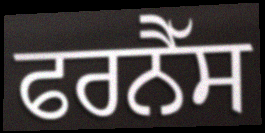
ਫਰਨੈੱਸ